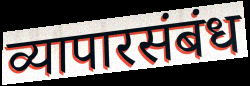
व्यापारसंबंध